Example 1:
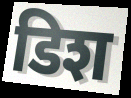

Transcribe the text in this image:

डिश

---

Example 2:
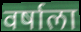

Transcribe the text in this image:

वर्षाला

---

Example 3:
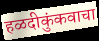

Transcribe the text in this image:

हळदीकुंकवाचा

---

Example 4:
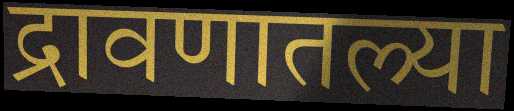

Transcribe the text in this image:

द्रावणातल्या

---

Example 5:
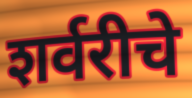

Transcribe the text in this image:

शर्वरीचे